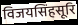
विजयसिंहसूरि